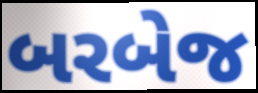
બરબેજ